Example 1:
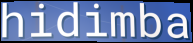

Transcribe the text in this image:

hidimba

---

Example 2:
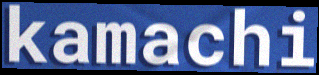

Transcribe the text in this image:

kamachi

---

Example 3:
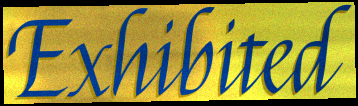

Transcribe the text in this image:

Exhibited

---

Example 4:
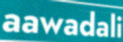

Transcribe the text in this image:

aawadali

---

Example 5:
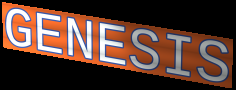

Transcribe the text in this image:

GENESIS